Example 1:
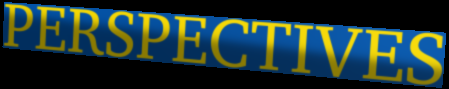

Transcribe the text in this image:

PERSPECTIVES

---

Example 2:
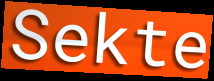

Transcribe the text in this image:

Sekte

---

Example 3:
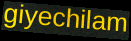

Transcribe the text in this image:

giyechilam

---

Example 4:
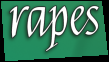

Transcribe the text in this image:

rapes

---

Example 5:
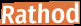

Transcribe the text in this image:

Rathod